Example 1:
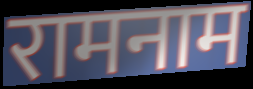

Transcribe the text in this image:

रामनाम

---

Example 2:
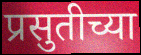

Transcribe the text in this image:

प्रसुतीच्या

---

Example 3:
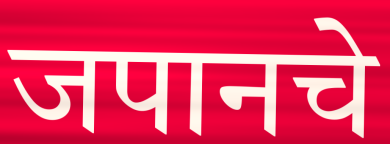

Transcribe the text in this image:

जपानचे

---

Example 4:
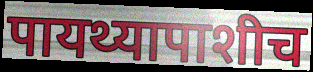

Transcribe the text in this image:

पायथ्यापाशीच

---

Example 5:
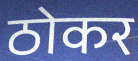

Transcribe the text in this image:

ठोकर